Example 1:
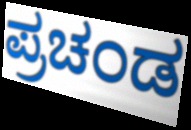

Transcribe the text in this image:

ಪ್ರಚಂಡ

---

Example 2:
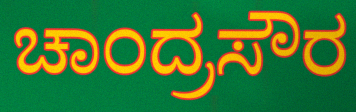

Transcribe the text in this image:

ಚಾಂದ್ರಸೌರ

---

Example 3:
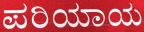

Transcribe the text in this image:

ಪರಿಯಾಯ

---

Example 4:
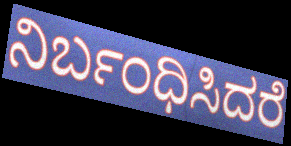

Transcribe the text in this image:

ನಿರ್ಬಂಧಿಸಿದರೆ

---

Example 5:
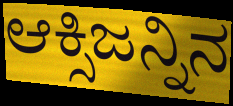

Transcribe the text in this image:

ಆಕ್ಸಿಜನ್ನಿನ